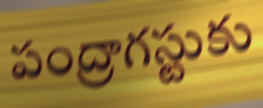
పంద్రాగస్టుకు